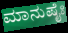
ಮಾನುಷೈಃ